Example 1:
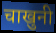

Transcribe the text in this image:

चाखुनी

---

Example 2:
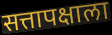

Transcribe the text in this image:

सत्तापक्षाला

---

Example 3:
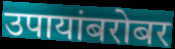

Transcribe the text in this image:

उपायांबरोबर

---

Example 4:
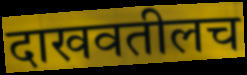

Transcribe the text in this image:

दाखवतीलच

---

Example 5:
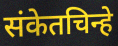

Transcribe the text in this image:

संकेतचिन्हे